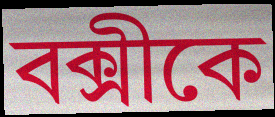
বক্সীকে